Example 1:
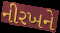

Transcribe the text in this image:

નીરખને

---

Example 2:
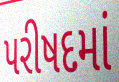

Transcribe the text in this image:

પરીષદમાં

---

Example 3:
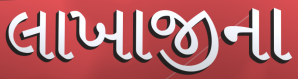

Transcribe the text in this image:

લાખાજીના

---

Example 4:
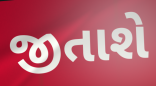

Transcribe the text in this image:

જીતાશે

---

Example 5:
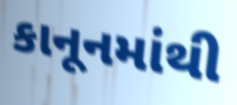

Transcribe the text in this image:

કાનૂનમાંથી